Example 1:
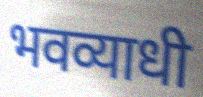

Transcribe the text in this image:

भवव्याधी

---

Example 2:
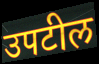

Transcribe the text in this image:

उपटील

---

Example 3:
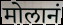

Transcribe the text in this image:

मोलानं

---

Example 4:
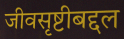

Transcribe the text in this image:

जीवसृष्टीबद्दल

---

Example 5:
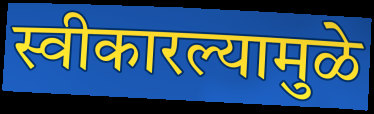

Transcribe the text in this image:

स्वीकारल्यामुळे